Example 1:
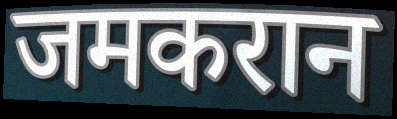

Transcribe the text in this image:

जमकरान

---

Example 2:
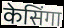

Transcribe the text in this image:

केसिंगा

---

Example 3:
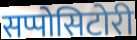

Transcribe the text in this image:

सप्पोसिटोरी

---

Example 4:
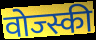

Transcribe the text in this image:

वोज्स्की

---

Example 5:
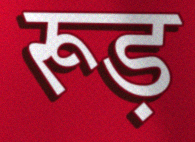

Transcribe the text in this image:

रूड़